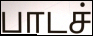
பாடச்